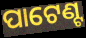
ପାଟେଣ୍ଟ